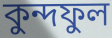
কুন্দফুল